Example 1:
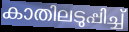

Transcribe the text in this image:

കാതിലടുപ്പിച്ച്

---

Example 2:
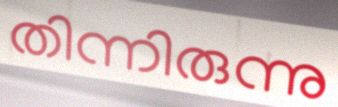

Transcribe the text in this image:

തിന്നിരുന്നു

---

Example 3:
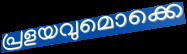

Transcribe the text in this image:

പ്രളയവുമൊക്കെ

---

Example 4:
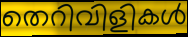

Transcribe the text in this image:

തെറിവിളികൾ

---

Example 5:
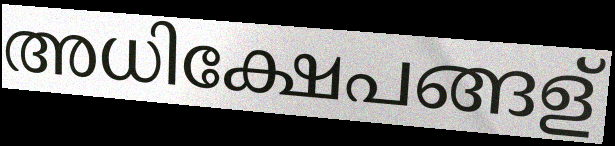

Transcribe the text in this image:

അധിക്ഷേപങ്ങള്